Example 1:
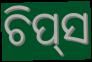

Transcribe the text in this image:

ଚିପ୍‌ସ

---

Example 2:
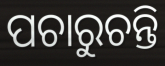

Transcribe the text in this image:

ପଚାରୁଚନ୍ତି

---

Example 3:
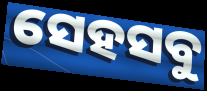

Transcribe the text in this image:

ସେହସବୁ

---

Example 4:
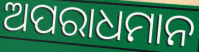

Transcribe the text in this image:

ଅପରାଧମାନ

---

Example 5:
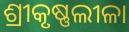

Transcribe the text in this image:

ଶ୍ରୀକୃଷ୍ଣଲୀଳା